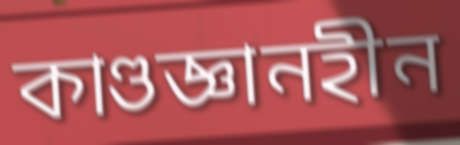
কাণ্ডজ্ঞানহীন